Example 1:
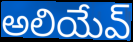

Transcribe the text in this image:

అలియేవ్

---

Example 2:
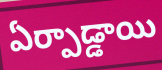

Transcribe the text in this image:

ఏర్పాడ్డాయి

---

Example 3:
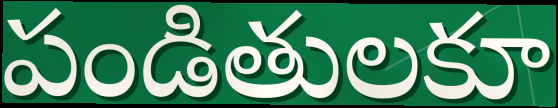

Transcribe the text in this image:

పండితులకూ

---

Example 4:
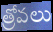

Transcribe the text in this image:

త్రోవలు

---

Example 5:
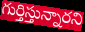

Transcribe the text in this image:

గుర్తిస్తున్నారని